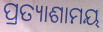
ପ୍ରତ୍ୟାଶାମୟ